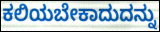
ಕಲಿಯಬೇಕಾದುದನ್ನು